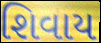
શિવાય